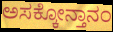
ಅಸಕ್ಕೋನ್ತಾನಂ